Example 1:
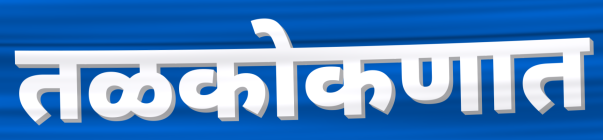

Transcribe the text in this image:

तळकोकणात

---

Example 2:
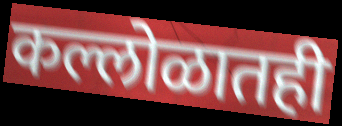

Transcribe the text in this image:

कल्लोळातही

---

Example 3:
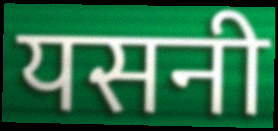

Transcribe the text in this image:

यसनी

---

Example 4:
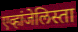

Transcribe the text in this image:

एव्हांजेलिस्ता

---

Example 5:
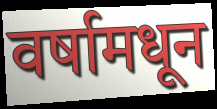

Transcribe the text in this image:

वर्षामधून